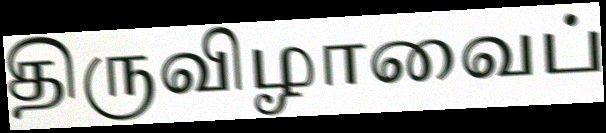
திருவிழாவைப்